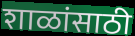
शाळांसाठी